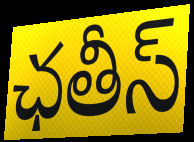
ఛతీస్